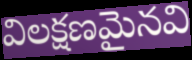
విలక్షణమైనవి